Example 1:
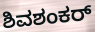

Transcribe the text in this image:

ಶಿವಶಂಕರ್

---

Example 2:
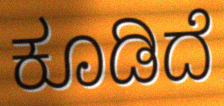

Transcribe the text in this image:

ಕೂಡಿದೆ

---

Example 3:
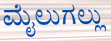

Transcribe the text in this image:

ಮೈಲುಗಲ್ಲು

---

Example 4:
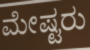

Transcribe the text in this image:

ಮೇಷ್ಟರು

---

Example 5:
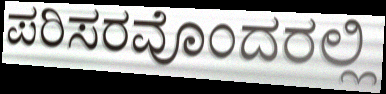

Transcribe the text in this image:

ಪರಿಸರವೊಂದರಲ್ಲಿ